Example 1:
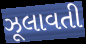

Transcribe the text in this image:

ઝૂલાવતી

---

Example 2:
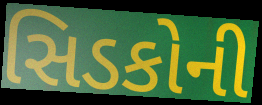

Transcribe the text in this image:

સિડકોની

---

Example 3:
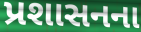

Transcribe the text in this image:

પ્રશાસનના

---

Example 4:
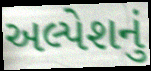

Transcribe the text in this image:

અલ્પેશનું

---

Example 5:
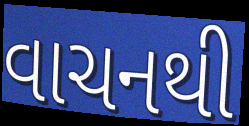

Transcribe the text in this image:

વાચનથી